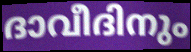
ദാവീദിനും